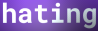
hating